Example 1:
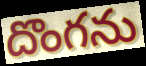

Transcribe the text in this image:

దొంగను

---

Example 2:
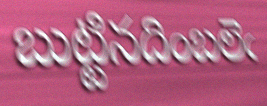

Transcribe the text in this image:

బుట్టినదింబలెఁ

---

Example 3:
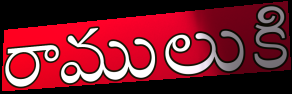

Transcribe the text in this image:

రాములుకి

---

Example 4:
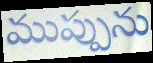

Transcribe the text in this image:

ముప్పును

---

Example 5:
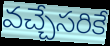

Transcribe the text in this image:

వచ్చేసరికే